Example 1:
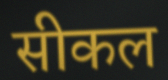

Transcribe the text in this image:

सीकल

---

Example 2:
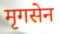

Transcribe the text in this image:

मृगसेन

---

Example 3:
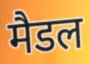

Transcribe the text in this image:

मैडल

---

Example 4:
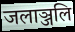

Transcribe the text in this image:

जलाञ्जलि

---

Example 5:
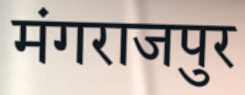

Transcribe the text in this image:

मंगराजपुर